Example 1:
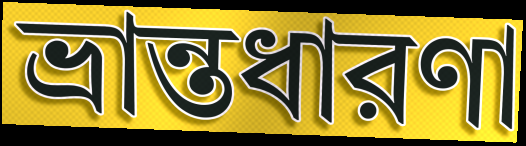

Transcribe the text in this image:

ভ্রান্তধারণা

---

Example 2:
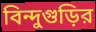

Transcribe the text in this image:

বিন্দুগুড়ির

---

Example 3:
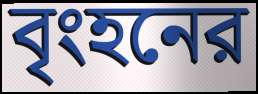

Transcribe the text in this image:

বৃংহনের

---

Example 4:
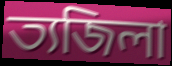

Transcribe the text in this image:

ত্যজিলা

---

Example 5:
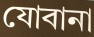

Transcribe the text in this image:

যোবানা